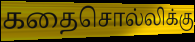
கதைசொல்லிக்கு